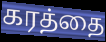
கரத்தை